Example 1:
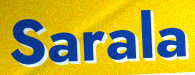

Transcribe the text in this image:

Sarala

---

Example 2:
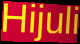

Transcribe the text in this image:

Hijuli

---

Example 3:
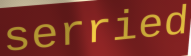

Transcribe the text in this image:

serried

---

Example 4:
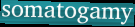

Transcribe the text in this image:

somatogamy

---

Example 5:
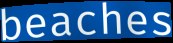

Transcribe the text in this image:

beaches